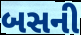
બસની